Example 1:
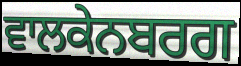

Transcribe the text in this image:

ਵਾਲਕੇਨਬਰਗ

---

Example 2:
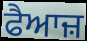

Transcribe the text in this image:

ਫੈਆਜ਼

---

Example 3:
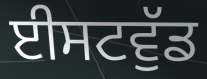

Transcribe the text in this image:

ਈਸਟਵੁੱਡ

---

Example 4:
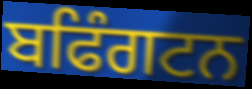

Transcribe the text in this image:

ਬਫਿੰਗਟਨ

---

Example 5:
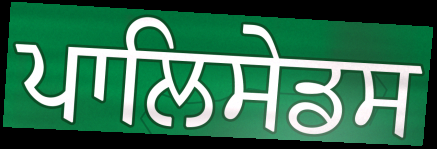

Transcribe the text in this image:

ਪਾਲਿਸੇਡਸ